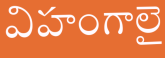
విహంగాలై